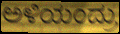
ಅಳಿಯಂದ್ರು